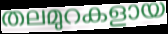
തലമുറകളായ